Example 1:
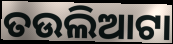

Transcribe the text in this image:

ତଉଲିଆଟା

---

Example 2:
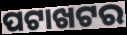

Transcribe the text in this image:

ପଟାଖଟର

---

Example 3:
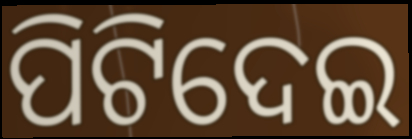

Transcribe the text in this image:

ପିଟିଦେଇ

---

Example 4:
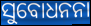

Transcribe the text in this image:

ସୁବୋଧନନା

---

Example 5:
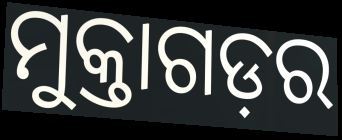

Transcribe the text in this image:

ମୁକ୍ତାଗଡ଼ର